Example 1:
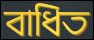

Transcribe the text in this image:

বাধিত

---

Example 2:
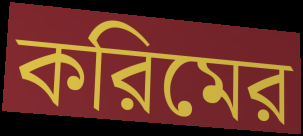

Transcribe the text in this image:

করিমের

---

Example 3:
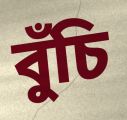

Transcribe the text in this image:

বুঁচি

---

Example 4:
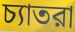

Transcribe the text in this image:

চ্যাতরা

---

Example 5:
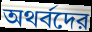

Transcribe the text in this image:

অথর্বদের